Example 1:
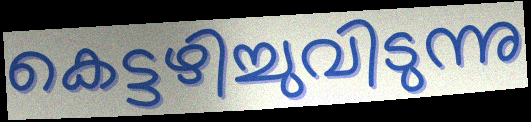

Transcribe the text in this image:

കെട്ടഴിച്ചുവിടുന്നു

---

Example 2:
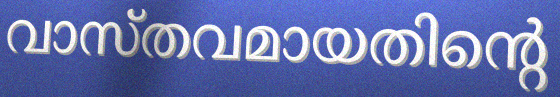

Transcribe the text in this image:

വാസ്തവമായതിന്റെ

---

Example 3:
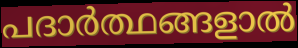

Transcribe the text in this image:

പദാർത്ഥങ്ങളാൽ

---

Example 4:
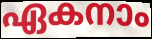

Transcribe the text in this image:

ഏകനാം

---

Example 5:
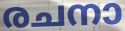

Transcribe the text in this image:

രചനാ